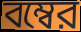
বম্বের